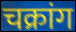
चक्रांग